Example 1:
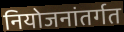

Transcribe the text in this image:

नियोजनांतर्गत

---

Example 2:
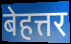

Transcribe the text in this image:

बेहत्तर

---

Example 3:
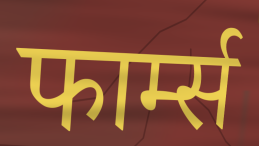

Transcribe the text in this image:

फार्म्स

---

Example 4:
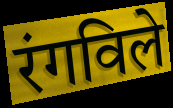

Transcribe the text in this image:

रंगविले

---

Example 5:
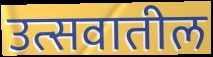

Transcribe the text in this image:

उत्सवातील